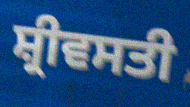
ਸ਼੍ਰੀਵਸਤੀ